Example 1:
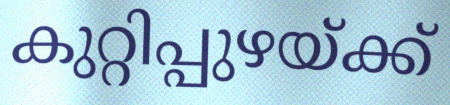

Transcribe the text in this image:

കുറ്റിപ്പുഴയ്ക്ക്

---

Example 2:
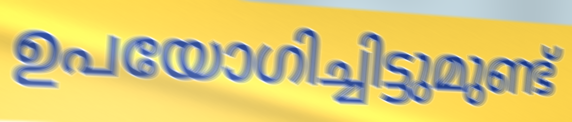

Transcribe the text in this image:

ഉപയോഗിച്ചിട്ടുമുണ്ട്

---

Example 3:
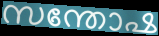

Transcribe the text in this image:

സന്തോഷ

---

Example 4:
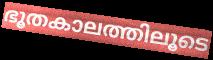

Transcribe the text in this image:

ഭൂതകാലത്തിലൂടെ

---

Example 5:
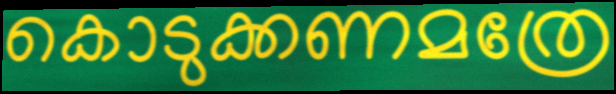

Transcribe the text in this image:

കൊടുക്കണമത്രേ